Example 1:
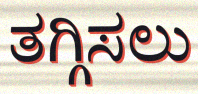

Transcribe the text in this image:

ತಗ್ಗಿಸಲು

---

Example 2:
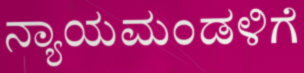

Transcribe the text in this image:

ನ್ಯಾಯಮಂಡಳಿಗೆ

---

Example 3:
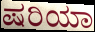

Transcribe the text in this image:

ಷರಿಯಾ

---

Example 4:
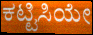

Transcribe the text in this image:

ಕಟ್ಟಿಸಿಯೇ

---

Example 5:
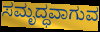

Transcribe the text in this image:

ಸಮೃದ್ಧವಾಗುವ